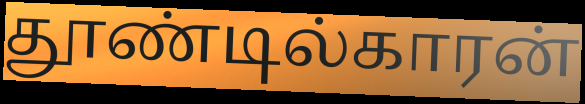
தூண்டில்காரன்